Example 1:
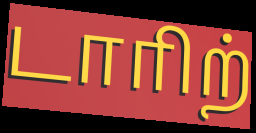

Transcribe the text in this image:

டாரிற்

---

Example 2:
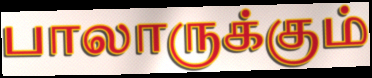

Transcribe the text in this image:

பாலாருக்கும்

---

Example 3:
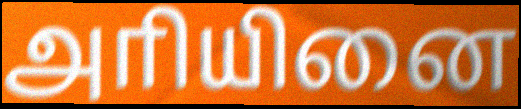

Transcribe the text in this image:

அரியினை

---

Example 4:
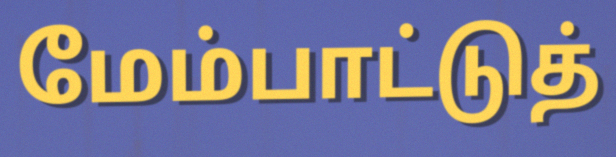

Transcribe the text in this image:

மேம்பாட்டுத்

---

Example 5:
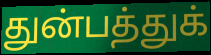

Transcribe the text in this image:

துன்பத்துக்